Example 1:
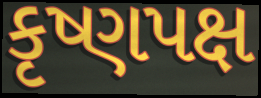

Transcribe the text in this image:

કૃષ્ણપક્ષ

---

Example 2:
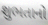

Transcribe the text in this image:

શુભતાનો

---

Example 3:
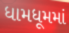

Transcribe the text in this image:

ધામધૂમમાં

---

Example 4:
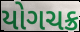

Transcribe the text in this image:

યોગચક્ર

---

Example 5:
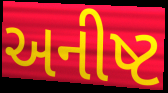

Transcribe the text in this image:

અનીષ્ટ